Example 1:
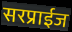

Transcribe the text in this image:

सरप्राईज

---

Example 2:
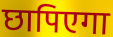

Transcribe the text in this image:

छापिएगा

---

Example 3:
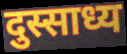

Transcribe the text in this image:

दुस्साध्य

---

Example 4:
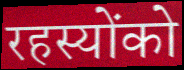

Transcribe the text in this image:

रहस्योंको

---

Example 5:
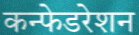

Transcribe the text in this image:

कन्‍फेडरेशन